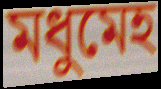
মধুমেহ